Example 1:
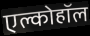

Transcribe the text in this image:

एल्कोहॉल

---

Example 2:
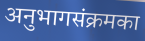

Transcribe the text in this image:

अनुभागसंक्रमका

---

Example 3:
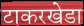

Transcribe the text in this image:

टाकरखेडा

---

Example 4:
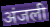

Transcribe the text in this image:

अंजली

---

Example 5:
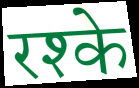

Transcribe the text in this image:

रश्के